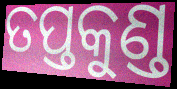
ତପ୍ତକୁଣ୍ଡ